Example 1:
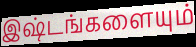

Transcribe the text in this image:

இஷ்டங்களையும்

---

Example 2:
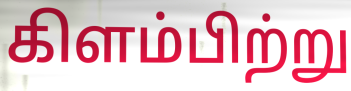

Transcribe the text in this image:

கிளம்பிற்று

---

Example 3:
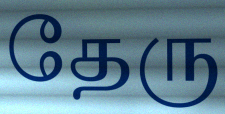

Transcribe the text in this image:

தேரு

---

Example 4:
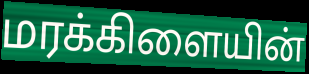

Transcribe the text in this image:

மரக்கிளையின்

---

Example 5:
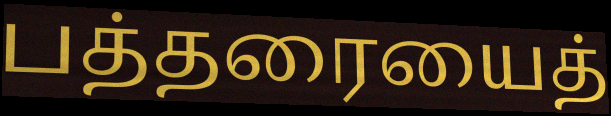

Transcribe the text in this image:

பத்தரையைத்